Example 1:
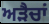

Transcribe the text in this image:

ਅੜੈਚਾਂ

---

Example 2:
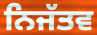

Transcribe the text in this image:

ਨਿਜੱਤਵ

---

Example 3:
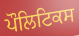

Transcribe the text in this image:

ਪੌਲਿਟਿਕਸ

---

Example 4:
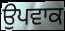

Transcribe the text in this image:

ਉਪਵਾਕ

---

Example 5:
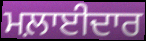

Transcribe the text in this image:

ਮਲ਼ਾਈਦਾਰ